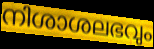
നിശാശലഭവും